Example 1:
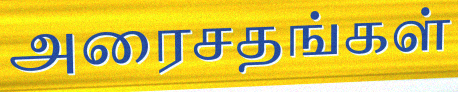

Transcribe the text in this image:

அரைசதங்கள்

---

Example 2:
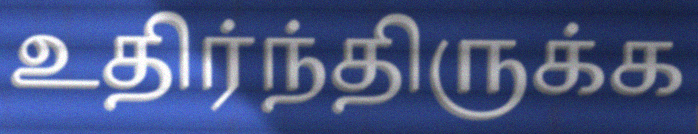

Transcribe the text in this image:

உதிர்ந்திருக்க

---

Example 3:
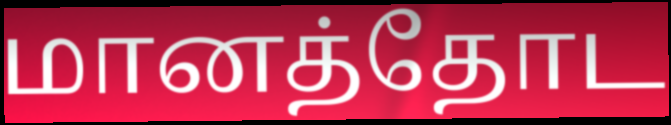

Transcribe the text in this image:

மானத்தோட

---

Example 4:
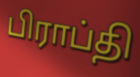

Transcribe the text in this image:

பிராப்தி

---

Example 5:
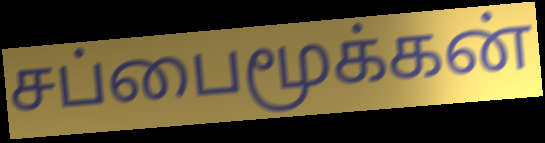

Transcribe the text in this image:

சப்பைமூக்கன்